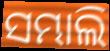
ସମ୍ଭାଲି